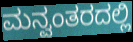
ಮನ್ವಂತರದಲ್ಲಿ